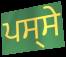
ਪਸ੍ਸੇ